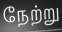
நேற்று